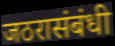
जठरासंबंधी